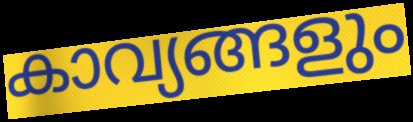
കാവ്യങ്ങളും